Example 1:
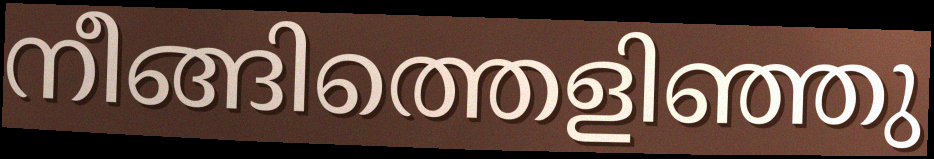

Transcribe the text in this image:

നീങ്ങിത്തെളിഞ്ഞു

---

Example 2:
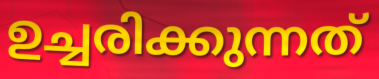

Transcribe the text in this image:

ഉച്ചരിക്കുന്നത്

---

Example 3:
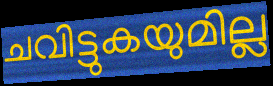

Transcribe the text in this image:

ചവിട്ടുകയുമില്ല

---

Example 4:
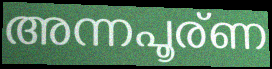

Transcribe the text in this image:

അന്നപൂര്ണ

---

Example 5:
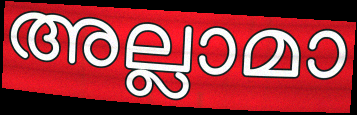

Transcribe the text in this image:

അല്ലാമാ